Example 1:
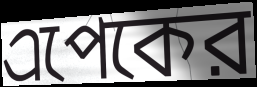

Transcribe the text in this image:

এপেকের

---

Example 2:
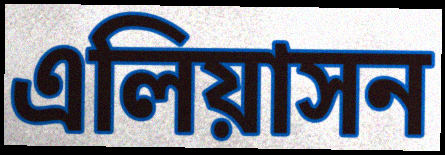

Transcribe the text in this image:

এলিয়াসন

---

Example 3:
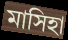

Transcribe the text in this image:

মাসিহা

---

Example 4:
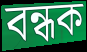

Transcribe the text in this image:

বন্ধক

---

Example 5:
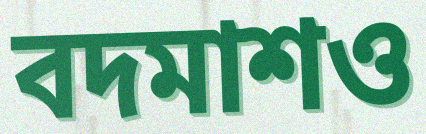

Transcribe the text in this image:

বদমাশও